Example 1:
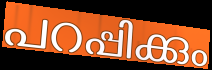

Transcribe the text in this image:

പറപ്പിക്കും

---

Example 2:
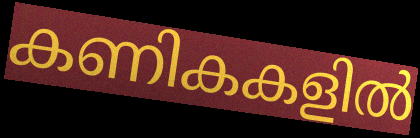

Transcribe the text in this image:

കണികകളിൽ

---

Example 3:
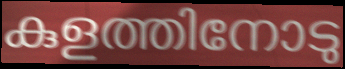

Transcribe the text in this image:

കുളത്തിനോടു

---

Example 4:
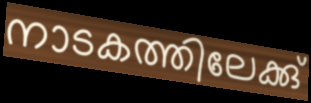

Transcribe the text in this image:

നാടകത്തിലേക്കു്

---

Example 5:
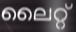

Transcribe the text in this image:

ലൈറ്റ്